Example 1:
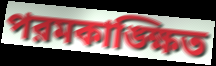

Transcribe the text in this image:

পরমকাঙ্ক্ষিত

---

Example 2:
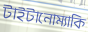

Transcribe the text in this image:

টাইটানোম্যাকি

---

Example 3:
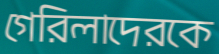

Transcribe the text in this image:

গেরিলাদেরকে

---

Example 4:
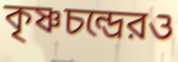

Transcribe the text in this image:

কৃষ্ণচন্দ্রেরও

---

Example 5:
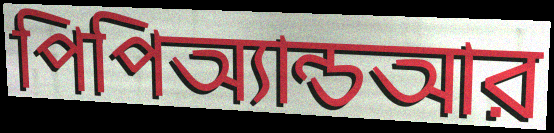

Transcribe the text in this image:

পিপিঅ্যান্ডআর